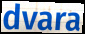
dvara